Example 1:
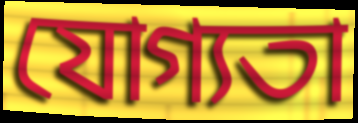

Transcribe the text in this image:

যোগ্যতা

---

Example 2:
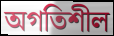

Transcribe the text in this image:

অগতিশীল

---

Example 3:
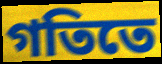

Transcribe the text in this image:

গতিতে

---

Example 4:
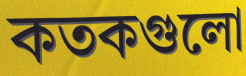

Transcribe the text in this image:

কতকগুলো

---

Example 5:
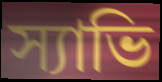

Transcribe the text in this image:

স্যাভি